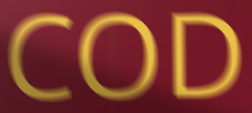
COD